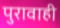
पुरावाही